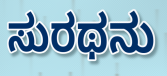
ಸುರಥನು